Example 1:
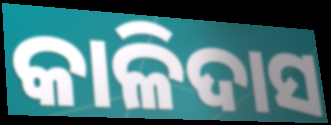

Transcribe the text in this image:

କାଳିଦାସ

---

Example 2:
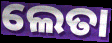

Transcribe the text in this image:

ଲେତା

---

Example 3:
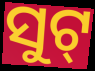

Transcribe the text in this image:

ସୁଟ୍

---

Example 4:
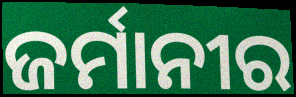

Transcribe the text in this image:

ଜର୍ମାନୀର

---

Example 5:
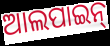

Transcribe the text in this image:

ଆଲପାଇନ୍